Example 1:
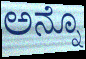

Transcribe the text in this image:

ಅನ್ನೊ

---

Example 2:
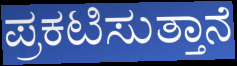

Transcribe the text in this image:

ಪ್ರಕಟಿಸುತ್ತಾನೆ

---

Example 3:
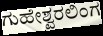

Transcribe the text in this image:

ಗುಹೇಶ್ವರಲಿಂಗ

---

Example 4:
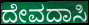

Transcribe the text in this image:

ದೇವದಾಸಿ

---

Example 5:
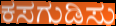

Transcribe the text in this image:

ಕಸಗುಡಿಸು